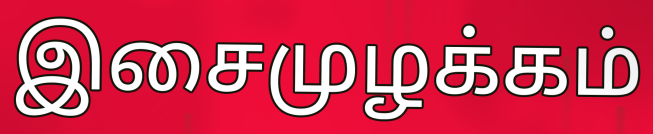
இசைமுழக்கம்